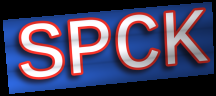
SPCK